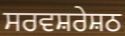
ਸਰਵਸ਼ਰੇਸ਼ਠ